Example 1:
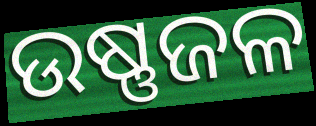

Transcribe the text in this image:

ଉଷ୍ଣଜଳ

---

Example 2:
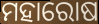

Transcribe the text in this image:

ମହାରୋଷ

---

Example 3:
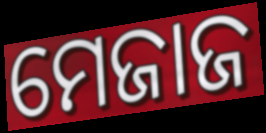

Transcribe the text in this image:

ମେଜାଜ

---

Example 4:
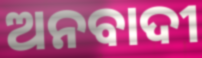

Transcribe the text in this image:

ଅନବାଦୀ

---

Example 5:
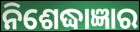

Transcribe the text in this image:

ନିଶେଦ୍ଧାଜ୍ଞାର